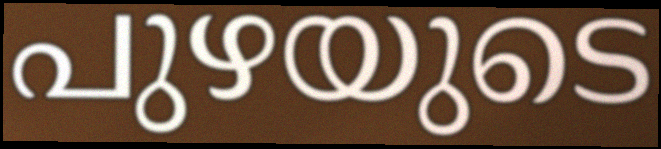
പുഴയുടെ